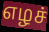
எழச்